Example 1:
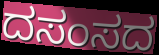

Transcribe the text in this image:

ದಸಂಸದ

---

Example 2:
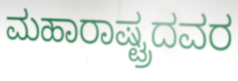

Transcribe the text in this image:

ಮಹಾರಾಷ್ಟ್ರದವರ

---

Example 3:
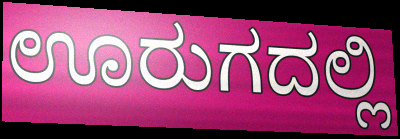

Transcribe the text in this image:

ಊರುಗದಲ್ಲಿ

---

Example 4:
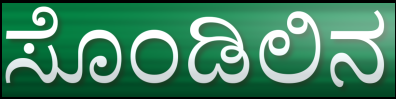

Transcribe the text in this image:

ಸೊಂಡಿಲಿನ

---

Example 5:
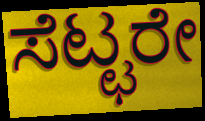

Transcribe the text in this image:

ಸೆಟ್ಟರೇ